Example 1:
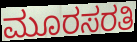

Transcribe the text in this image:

ಮೂರಸರತಿ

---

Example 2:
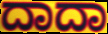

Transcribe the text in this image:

ದಾದಾ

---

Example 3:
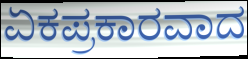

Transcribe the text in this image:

ಏಕಪ್ರಕಾರವಾದ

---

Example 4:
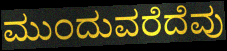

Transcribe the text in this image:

ಮುಂದುವರೆದೆವು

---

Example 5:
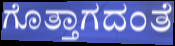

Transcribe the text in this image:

ಗೊತ್ತಾಗದಂತೆ